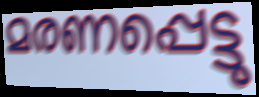
മരണപ്പെട്ടു